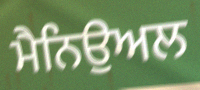
ਮੈਨਿਉਅਲ